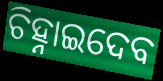
ଚିହ୍ନାଇଦେବ